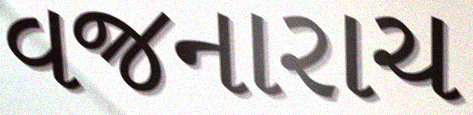
વજ્રનારાચ